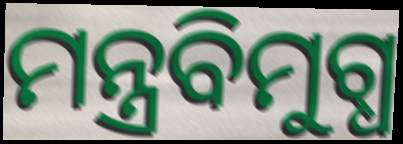
ମନ୍ତ୍ରବିମୁଗ୍ଧ